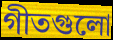
গীতগুলো